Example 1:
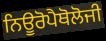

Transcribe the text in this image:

ਨਿਊਰੋਪੈਥੋਲੋਜੀ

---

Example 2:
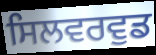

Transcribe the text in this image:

ਸਿਲਵਰਵੁਡ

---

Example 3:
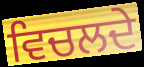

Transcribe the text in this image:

ਵਿਚਲਦੇ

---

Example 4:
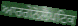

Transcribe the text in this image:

ਆਰਗੇਨੋਲੈਪਟਿਕ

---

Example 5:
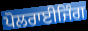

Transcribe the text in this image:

ਪੋਲਰਾਈਜਿੰਗ